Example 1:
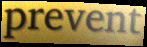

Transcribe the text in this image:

prevent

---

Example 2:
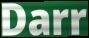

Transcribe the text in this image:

Darr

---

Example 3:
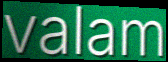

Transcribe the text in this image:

valam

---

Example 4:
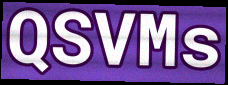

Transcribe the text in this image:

QSVMs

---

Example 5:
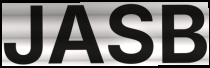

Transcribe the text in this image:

JASB